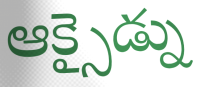
ఆక్సైడ్ను